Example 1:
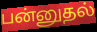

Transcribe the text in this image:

பன்னுதல்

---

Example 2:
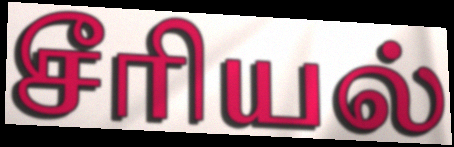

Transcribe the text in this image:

சீரியல்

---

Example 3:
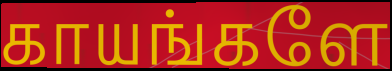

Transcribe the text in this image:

காயங்களே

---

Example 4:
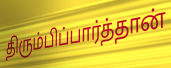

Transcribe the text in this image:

திரும்பிப்பார்த்தான்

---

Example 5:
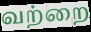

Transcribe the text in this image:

வற்றை